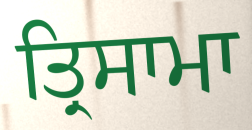
ਤ੍ਰਿਸਾਮਾ